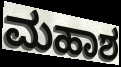
ಮಹಾಶ